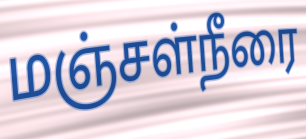
மஞ்சள்நீரை